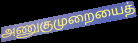
அணுகுமுறையைத்